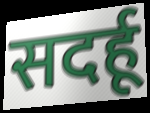
सदर्हू